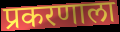
प्रकरणाला